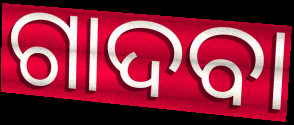
ଗାଦବା